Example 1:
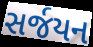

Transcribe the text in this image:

સર્જયન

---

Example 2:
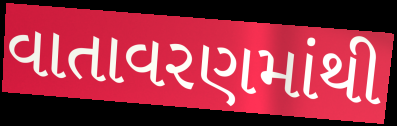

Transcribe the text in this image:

વાતાવરણમાંથી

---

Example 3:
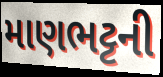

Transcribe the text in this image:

માણભટ્ટની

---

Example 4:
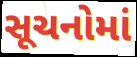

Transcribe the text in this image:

સૂચનોમાં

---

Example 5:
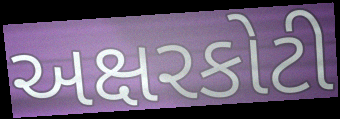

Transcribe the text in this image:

અક્ષરકોટી